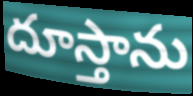
దూస్తాను